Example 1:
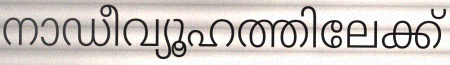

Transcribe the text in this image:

നാഡീവ്യൂഹത്തിലേക്ക്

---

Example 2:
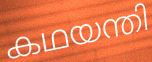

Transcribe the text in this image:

കഥയന്തി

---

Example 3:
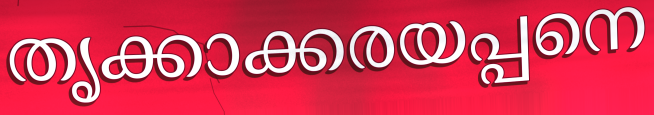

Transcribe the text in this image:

തൃക്കാക്കരയപ്പനെ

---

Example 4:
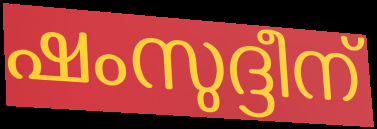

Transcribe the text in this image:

ഷംസുദ്ദീന്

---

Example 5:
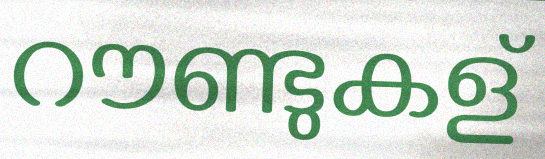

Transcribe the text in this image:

റൗണ്ടുകള്